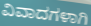
ವಿವಾದಗಳಾಗಿ